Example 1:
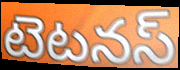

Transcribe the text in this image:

టెటనస్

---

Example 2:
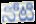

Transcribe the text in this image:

నోటి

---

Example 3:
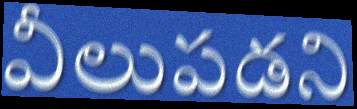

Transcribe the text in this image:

వీలుపడని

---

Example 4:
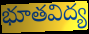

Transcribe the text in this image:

భూతవిద్య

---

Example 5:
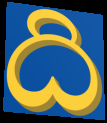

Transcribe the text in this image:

ది